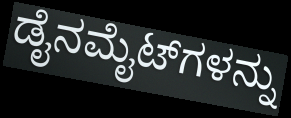
ಡೈನಮೈಟ್‌ಗಳನ್ನು